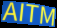
AITM